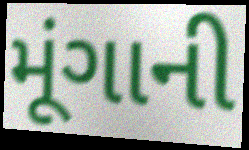
મૂંગાની